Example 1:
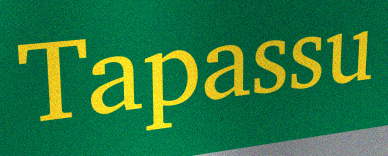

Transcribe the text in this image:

Tapassu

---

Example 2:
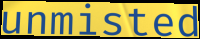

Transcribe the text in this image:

unmisted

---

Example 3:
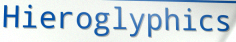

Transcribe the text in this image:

Hieroglyphics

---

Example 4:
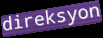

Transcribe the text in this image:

direksyon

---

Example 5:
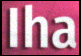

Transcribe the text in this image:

Iha